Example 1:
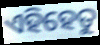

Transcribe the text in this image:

ଏହିହେତୁ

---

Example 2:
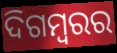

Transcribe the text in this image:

ଦିଗମ୍ୱରର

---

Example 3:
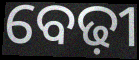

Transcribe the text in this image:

ବେଢ଼ୀ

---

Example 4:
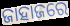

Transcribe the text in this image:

ଜାହାଜରେ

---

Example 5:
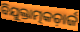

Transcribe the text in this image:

ବିଯୁକ୍ତାତ୍ମକଚ଼ାର୍ଜ